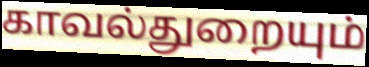
காவல்துறையும்